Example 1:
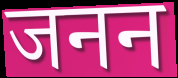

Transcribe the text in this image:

जनन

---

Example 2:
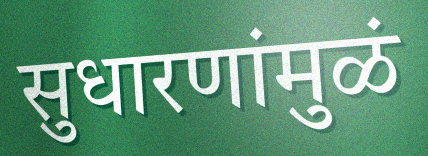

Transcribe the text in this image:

सुधारणांमुळं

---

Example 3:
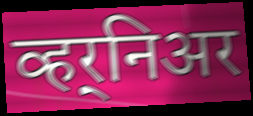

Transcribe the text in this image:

व्हर्निअर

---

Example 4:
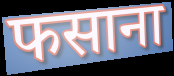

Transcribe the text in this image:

फसाना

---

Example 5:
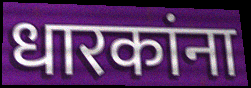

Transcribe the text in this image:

धारकांना